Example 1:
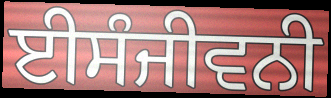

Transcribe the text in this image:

ਈਸੰਜੀਵਨੀ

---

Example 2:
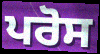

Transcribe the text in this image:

ਪਰੋਸ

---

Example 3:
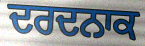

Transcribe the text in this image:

ਦਰਦਨਾਕ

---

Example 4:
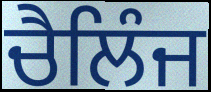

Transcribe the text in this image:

ਚੈਲਿੰਜ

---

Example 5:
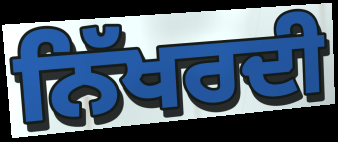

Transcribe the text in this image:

ਨਿੱਖਰਦੀ